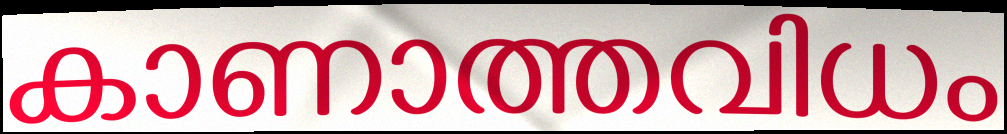
കാണാത്തവിധം